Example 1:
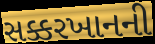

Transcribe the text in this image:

સક્કરખાનની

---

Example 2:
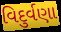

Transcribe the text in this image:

વિદુર્વણા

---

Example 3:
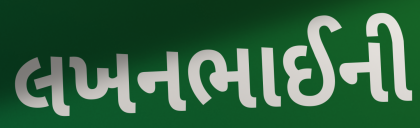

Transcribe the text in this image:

લખનભાઈની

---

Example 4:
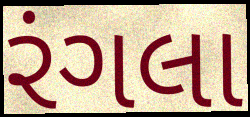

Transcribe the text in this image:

રંગલા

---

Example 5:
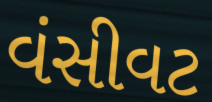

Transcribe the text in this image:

વંસીવટ